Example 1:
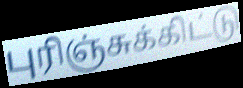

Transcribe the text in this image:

புரிஞ்சுக்கிட்டு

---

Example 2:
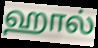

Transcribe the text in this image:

ஹால்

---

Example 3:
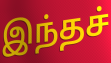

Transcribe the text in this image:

இந்தச்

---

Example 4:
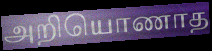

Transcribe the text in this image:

அறியொணாத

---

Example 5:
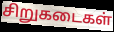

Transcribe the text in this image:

சிறுகடைகள்